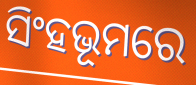
ସିଂହଭୂମରେ